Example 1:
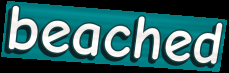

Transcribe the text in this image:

beached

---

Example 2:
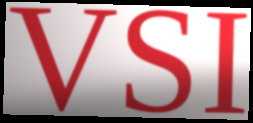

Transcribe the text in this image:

VSI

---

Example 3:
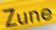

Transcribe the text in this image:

Zune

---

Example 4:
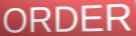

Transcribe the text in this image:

ORDER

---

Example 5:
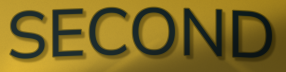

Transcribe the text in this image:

SECOND